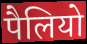
पैलियो